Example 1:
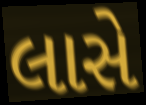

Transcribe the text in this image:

લાસે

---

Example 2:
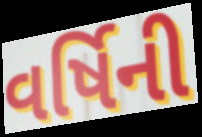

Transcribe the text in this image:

વર્ષિની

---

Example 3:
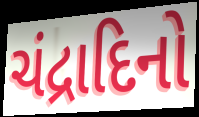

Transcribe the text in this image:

ચંદ્રાદિનો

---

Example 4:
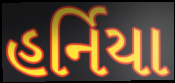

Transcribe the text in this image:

હર્નિયા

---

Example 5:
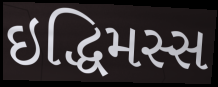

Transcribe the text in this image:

ઇદ્ધિમસ્સ